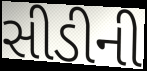
સીડીની